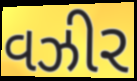
વઝીર